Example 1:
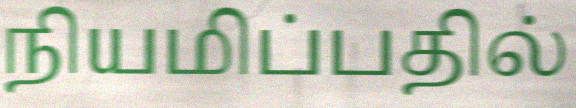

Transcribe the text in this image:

நியமிப்பதில்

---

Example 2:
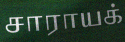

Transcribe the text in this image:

சாராயக்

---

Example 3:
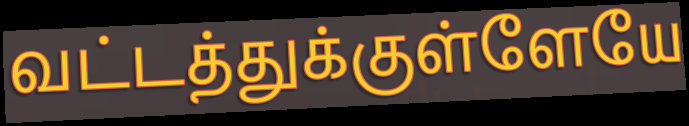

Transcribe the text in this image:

வட்டத்துக்குள்ளேயே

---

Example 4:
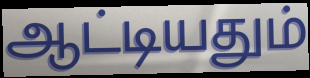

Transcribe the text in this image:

ஆட்டியதும்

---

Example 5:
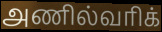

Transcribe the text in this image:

அணில்வரிக்